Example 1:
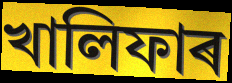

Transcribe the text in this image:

খালিফাৰ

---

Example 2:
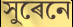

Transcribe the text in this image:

সুৰেনে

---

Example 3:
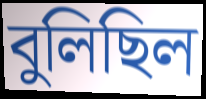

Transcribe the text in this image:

বুলিছিল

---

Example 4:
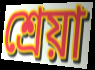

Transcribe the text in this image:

শ্ৰেয়া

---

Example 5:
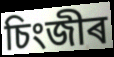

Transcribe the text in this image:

চিংজীৰ